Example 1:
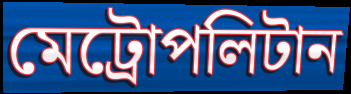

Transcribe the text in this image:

মেট্ৰোপলিটান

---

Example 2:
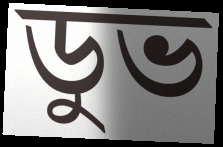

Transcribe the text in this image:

ডুভ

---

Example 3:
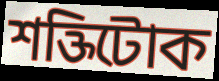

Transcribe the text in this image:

শক্তিটোক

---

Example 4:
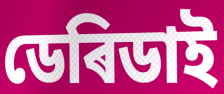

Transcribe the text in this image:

ডেৰিডাই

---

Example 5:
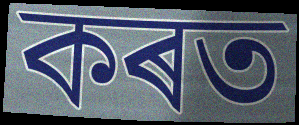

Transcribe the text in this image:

কৰত